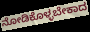
ನೋಡಿಕೊಳ್ಳಬೇಕಾದ